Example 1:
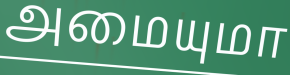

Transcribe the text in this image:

அமையுமா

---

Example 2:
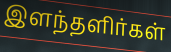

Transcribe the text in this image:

இளந்தளிர்கள்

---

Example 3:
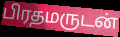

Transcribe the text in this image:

பிரதமருடன்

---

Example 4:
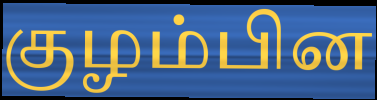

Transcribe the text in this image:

குழம்பின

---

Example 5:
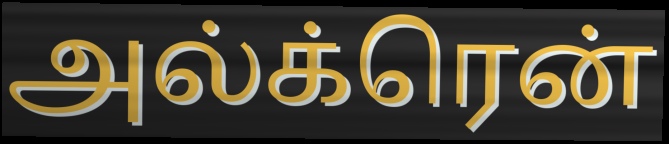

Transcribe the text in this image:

அல்க்ரென்